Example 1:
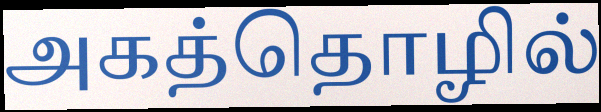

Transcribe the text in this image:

அகத்தொழில்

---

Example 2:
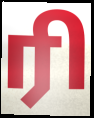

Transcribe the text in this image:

ரி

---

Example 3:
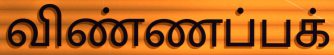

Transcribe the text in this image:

விண்ணப்பக்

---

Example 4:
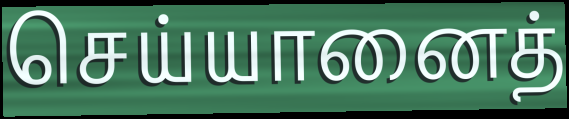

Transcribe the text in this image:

செய்யானைத்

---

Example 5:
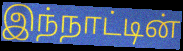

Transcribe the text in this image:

இந்நாட்டின்